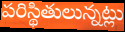
పరిస్థితులున్నట్లు